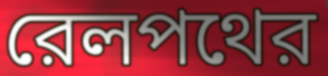
রেলপথের